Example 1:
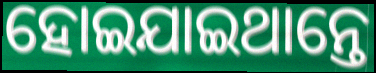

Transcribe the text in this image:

ହୋଇଯାଇଥାନ୍ତେ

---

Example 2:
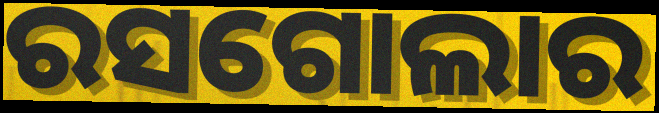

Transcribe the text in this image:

ରସଗୋଲାର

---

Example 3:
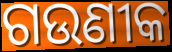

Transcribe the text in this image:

ଗଉଣୀକ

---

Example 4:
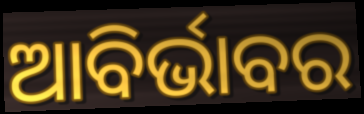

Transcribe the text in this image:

ଆବିର୍ଭାବର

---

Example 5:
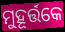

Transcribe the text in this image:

ମୁହୂର୍ତ୍ତକେ